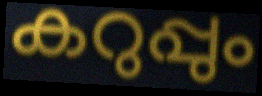
കറുപ്പും